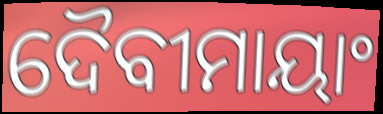
ଦୈବୀମାୟାଂ